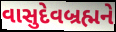
વાસુદેવબ્રહ્મને